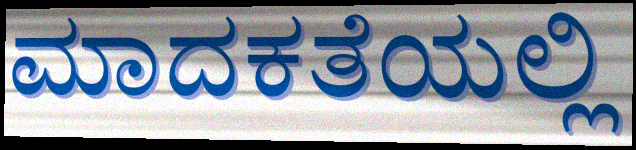
ಮಾದಕತೆಯಲ್ಲಿ